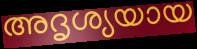
അദൃശ്യയായ